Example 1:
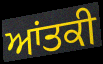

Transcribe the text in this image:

ਆਂਤਕੀ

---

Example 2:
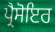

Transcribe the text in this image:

ਪ੍ਰੈਸੋਇਰ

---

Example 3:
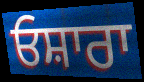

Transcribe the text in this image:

ਓਸ਼ਾਰਾ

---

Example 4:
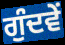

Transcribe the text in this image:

ਗੁੰਦਵੇਂ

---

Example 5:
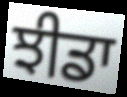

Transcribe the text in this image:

ਝੀਡਾ